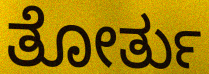
ತೋರ್ತು